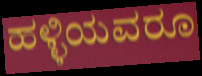
ಹಳ್ಳಿಯವರೂ